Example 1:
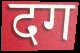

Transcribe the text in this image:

दग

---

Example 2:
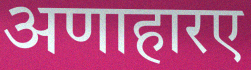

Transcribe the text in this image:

अणाहारए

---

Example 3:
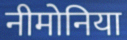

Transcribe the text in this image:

नीमोनिया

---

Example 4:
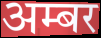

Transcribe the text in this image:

अम्‍बर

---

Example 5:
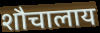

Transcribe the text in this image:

शौचालाय